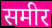
समीर